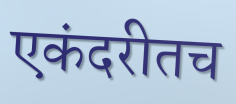
एकंदरीतच